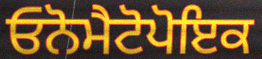
ਓਨੋਮੈਟੋਪੋਇਕ